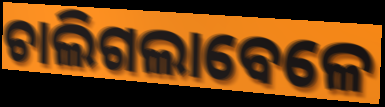
ଚାଲିଗଲାବେଳେ